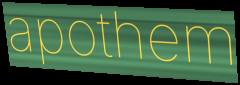
apothem